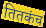
तितकंच